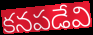
కనపడేవి